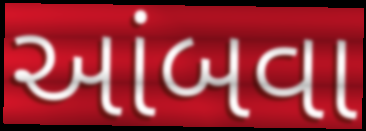
આંબવા